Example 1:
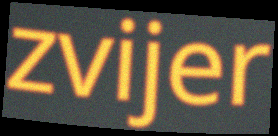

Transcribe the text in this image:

zvijer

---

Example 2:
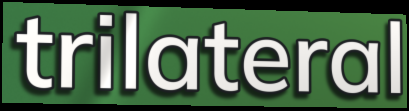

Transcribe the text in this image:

trilateral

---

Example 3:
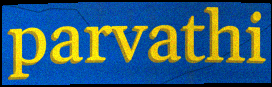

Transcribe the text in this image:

parvathi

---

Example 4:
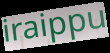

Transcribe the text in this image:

iraippu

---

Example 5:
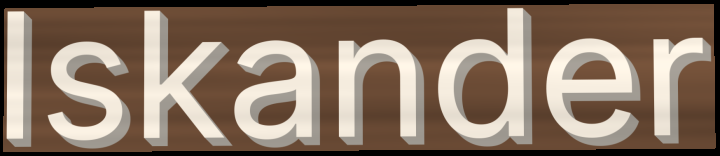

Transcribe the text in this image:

Iskander